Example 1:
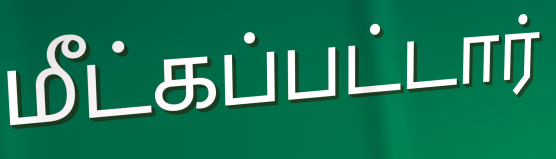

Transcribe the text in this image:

மீட்கப்பட்டார்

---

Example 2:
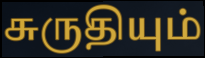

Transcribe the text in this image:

சுருதியும்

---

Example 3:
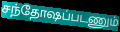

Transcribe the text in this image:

சந்தோஷப்படணும்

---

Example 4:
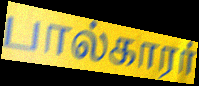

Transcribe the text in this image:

பால்காரர்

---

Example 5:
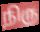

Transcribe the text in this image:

நிரு